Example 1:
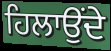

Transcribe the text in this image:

ਹਿਲਾਉਂਦੇ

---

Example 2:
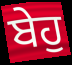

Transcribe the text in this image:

ਬੇਹੁ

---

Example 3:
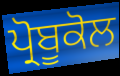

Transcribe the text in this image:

ਪ੍ਰੋਬੂਕੋਲ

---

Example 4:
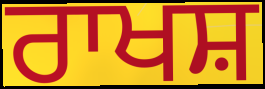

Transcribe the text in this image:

ਰਾਖਸ਼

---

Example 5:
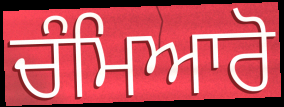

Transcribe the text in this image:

ਚੰਮਿਆਰੋ